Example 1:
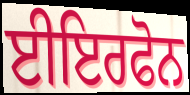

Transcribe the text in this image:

ਈਇਰਫੋਨ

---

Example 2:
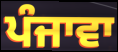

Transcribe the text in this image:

ਪੰਜਾਵਾ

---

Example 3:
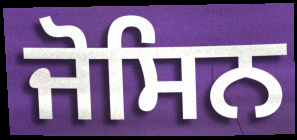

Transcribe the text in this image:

ਜੋਸਿਨ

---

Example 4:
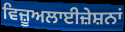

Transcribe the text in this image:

ਵਿਜ਼ੂਅਲਾਈਜ਼ੇਸ਼ਨਾਂ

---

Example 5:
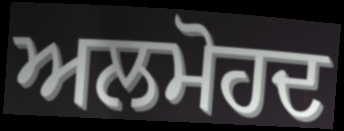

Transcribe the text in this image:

ਅਲਮੋਹਦ